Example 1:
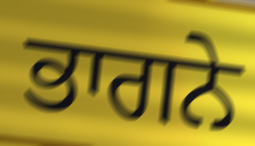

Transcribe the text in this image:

ਭਾਗਨੇ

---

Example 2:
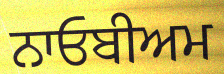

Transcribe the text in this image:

ਨਾਓਬੀਅਮ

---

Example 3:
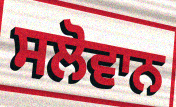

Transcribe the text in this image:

ਸਲੋਵਾਨ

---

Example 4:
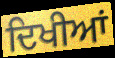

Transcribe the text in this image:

ਦਿਖੀਆਂ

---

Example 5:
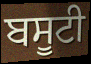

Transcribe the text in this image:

ਬਸੂਟੀ